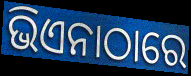
ଭିଏନାଠାରେ